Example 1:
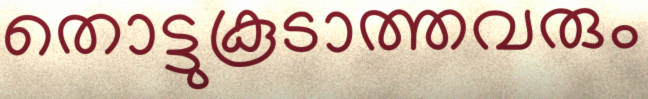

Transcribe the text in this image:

തൊട്ടുകൂടാത്തവരും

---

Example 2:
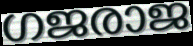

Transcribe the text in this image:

ഗജരാജ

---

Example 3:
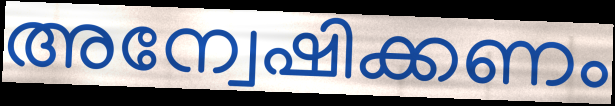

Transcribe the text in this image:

അന്വേഷിക്കണം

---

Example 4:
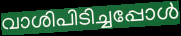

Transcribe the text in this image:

വാശിപിടിച്ചപ്പോൾ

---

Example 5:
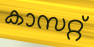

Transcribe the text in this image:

കാസറ്റ്